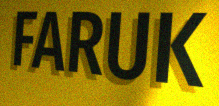
FARUK